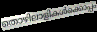
തൊഴിലാളികൾക്കൊപ്പം